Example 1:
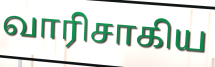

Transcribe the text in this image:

வாரிசாகிய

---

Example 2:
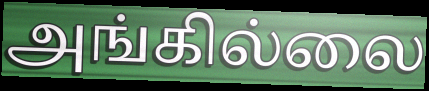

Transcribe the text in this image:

அங்கில்லை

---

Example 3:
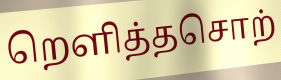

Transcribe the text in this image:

றெளித்தசொற்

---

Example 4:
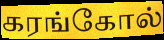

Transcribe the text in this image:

கரங்கோல்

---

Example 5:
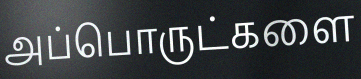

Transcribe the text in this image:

அப்பொருட்களை